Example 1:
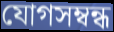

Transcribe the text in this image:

যোগসম্বন্ধ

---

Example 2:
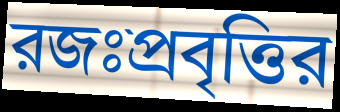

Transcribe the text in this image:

রজঃপ্রবৃত্তির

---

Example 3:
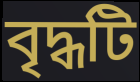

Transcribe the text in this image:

বৃদ্ধটি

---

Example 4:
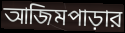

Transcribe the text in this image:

আজিমপাড়ার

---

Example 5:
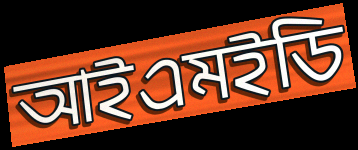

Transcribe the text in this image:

আইএমইডি